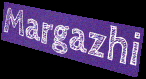
Margazhi